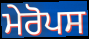
ਮੇਰੋਪਸ